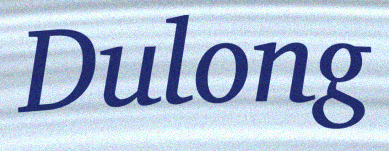
Dulong